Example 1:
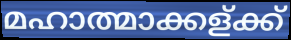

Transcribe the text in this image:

മഹാത്മാക്കള്ക്ക്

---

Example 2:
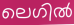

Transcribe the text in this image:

ലെഗിൽ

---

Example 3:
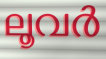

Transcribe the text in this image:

ലൂവർ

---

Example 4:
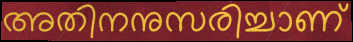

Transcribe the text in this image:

അതിനനുസരിച്ചാണ്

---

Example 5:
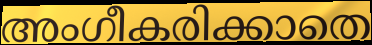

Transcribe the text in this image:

അംഗീകരിക്കാതെ